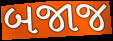
બજાજ